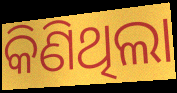
କିଣିଥିଲା